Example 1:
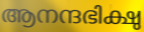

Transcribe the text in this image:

ആനന്ദഭിക്ഷു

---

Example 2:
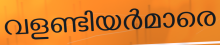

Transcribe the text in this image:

വളണ്ടിയർമാരെ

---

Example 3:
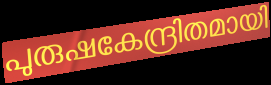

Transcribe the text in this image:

പുരുഷകേന്ദ്രിതമായി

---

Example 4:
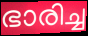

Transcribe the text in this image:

ഭാരിച്ച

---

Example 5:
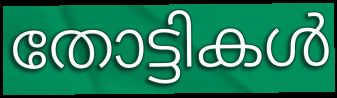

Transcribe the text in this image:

തോട്ടികൾ